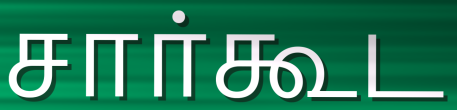
சார்கூட